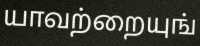
யாவற்றையுங்